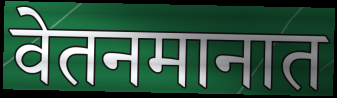
वेतनमानात